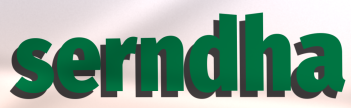
serndha